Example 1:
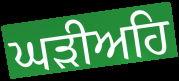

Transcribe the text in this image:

ਘੜੀਅਹਿ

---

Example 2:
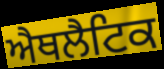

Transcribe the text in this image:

ਐਥਲੈਟਿਕ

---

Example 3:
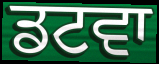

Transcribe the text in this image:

ਡਟਵਾ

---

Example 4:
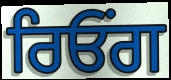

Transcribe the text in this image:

ਰਿਓਂਗ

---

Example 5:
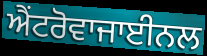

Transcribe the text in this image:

ਐਂਟਰੋਵਾਜਾਈਨਲ